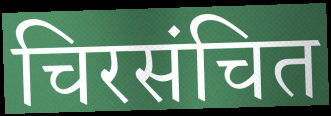
चिरसंचित